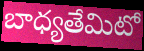
బాధ్యతేమిటో